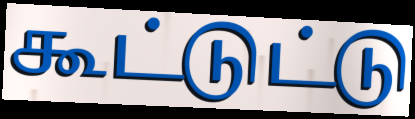
கூட்டுட்டு